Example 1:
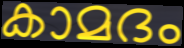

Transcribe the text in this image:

കാമദം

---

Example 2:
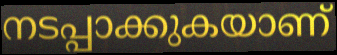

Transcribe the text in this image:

നടപ്പാക്കുകയാണ്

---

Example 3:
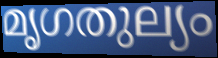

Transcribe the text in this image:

മൃഗതുല്യം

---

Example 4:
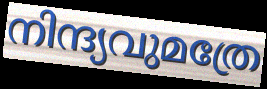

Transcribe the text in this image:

നിന്ദ്യവുമത്രേ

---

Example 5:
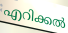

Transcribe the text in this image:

എറിക്കൽ